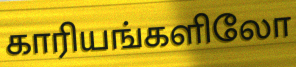
காரியங்களிலோ